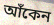
আঁকেন